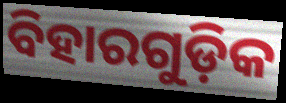
ବିହାରଗୁଡ଼ିକ